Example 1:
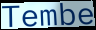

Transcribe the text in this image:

Tembe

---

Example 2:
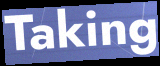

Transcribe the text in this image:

Taking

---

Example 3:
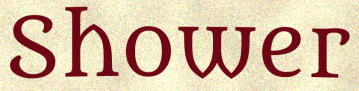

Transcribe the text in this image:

Shower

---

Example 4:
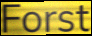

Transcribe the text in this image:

Forst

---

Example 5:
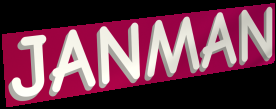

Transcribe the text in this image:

JANMAN